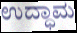
ಉದ್ಧಾಮ